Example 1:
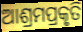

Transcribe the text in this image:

ଆଶ୍ରମପ୍ରକୃତି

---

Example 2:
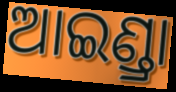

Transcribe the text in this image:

ଆଇଣ୍ଡ୍ରା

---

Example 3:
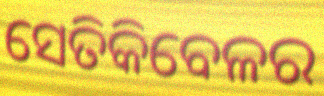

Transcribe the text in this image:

ସେତିକିବେଳର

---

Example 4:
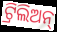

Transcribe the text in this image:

ଟ୍ରିଲିଅନ୍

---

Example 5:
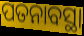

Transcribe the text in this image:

ପତନାବସ୍ଥା